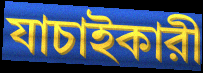
যাচাইকারী